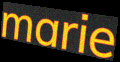
marie